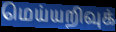
மெய்யறிவுக்